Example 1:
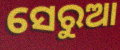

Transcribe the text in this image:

ସେରୁଆ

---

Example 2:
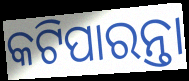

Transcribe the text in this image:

କଟିପାରନ୍ତା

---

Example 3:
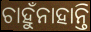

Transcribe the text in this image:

ଚାହୁଁନାହାନ୍ତି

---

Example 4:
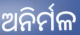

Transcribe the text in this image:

ଅନିର୍ମଳ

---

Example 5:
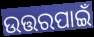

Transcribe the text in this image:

ଉତ୍ତରପାଇଁ